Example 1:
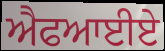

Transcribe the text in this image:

ਐਫਆਈਏ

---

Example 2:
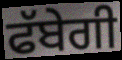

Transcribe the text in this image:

ਫੱਬੇਗੀ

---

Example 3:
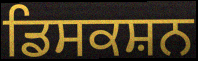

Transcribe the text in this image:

ਡਿਸਕਸ਼ਨ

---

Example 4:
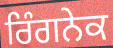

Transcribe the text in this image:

ਰਿੰਗਨੇਕ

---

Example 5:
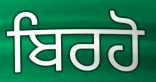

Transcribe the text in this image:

ਬਿਰਹੋ